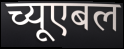
च्यूएबल